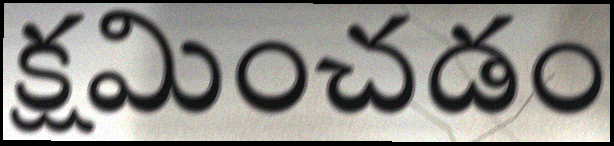
క్షమించడం